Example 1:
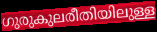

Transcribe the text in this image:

ഗുരുകുലരീതിയിലുള്ള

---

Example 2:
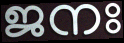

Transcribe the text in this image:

ജനഃ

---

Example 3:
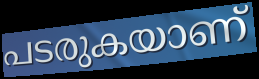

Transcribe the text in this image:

പടരുകയാണ്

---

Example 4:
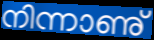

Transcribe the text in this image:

നിന്നാണു്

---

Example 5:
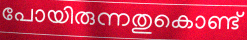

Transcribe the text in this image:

പോയിരുന്നതുകൊണ്ട്